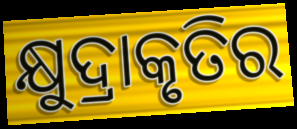
କ୍ଷୁଦ୍ରାକୃତିର